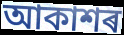
আকাশৰ